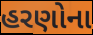
હરણોના